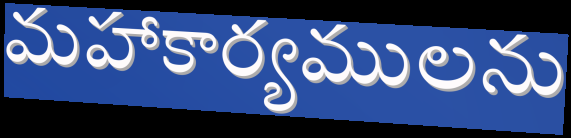
మహాకార్యములను